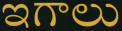
ఇగాలు